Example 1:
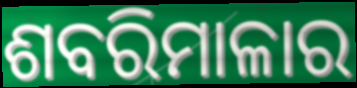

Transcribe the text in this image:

ଶବରିମାଳାର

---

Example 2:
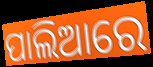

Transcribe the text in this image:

ପାଲିଆରେ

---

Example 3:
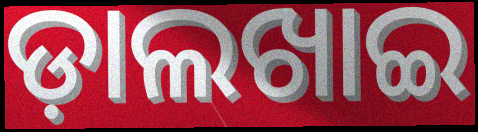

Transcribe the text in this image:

ଡ଼ାଲଖାଇ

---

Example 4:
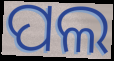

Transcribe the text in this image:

ପଲ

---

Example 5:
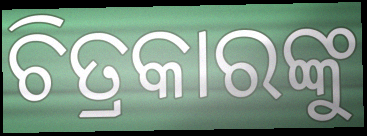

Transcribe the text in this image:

ଚିତ୍ରକାରଙ୍କୁ